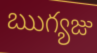
ఋగ్యజు